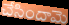
చేసిందామె